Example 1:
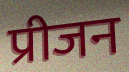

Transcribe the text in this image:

प्रीजन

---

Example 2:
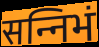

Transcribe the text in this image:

सन्निभं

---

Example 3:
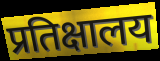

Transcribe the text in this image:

प्रतिक्षालय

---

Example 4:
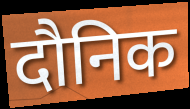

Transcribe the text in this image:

दौनिक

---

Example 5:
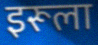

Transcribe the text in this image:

इरूला